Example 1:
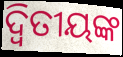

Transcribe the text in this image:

ଦ୍ଵିତୀୟଙ୍କ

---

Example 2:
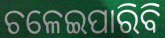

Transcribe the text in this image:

ଚଳେଇପାରିବି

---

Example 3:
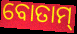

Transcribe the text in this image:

ବୋତାମ୍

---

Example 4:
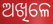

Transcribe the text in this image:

ଅଖିଳେ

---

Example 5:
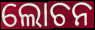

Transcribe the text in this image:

ଲୋଚନ